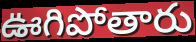
ఊగిపోతారు